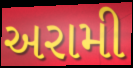
અરામી